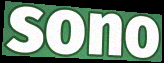
sono